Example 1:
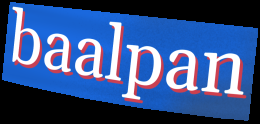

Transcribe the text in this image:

baalpan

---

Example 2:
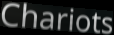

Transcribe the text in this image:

Chariots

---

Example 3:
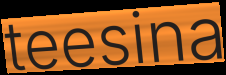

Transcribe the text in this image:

teesina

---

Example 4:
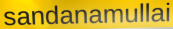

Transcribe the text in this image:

sandanamullai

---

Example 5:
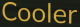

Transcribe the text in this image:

Cooler